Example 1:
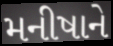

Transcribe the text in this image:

મનીષાને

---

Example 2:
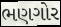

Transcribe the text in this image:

ભણગોર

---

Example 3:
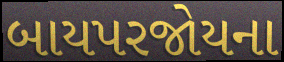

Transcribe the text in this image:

બાયપરજોયના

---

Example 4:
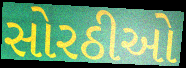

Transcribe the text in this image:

સોરઠીઓ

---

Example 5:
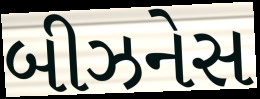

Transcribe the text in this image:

બીઝનેસ